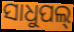
ସାଧୁପଲ୍